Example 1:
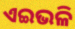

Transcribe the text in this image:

ଏଇଭଳି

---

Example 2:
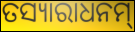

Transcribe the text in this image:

ତସ୍ୟାରାଧନମ୍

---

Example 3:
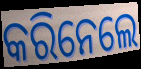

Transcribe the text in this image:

କରିନେଲେ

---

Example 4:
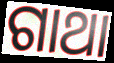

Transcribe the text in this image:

ଗାଥା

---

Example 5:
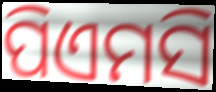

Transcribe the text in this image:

ପିଏମସି